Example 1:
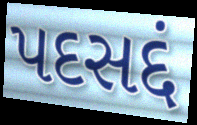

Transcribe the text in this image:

પદસદ્દં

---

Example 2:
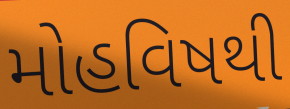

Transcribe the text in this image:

મોહવિષથી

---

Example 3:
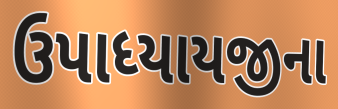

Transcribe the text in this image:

ઉપાધ્યાયજીના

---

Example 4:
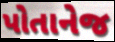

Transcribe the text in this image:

પોતાનેજ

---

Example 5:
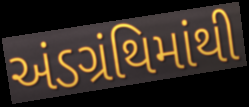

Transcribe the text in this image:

અંડગ્રંથિમાંથી